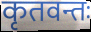
कृतवन्तः